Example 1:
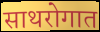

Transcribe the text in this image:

साथरोगात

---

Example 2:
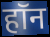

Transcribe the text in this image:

हॉन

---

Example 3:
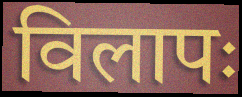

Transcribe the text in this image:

विलापः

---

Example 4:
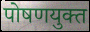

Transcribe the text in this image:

पोषणयुक्त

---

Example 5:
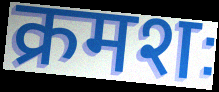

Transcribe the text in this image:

क्रमशः